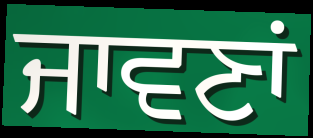
ਜਾਵਣਾਂ